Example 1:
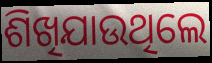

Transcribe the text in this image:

ଶିଖିଯାଉଥିଲେ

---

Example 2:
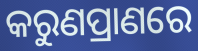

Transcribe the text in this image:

କରୁଣପ୍ରାଣରେ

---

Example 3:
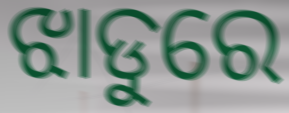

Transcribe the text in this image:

ଝାଡୁରେ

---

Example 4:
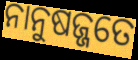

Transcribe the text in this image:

ନାନୁଷଜ୍ଜତେ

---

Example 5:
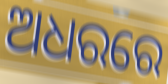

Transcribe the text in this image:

ଅଧରରେ